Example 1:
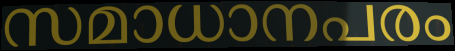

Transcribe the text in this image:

സമാധാനപരം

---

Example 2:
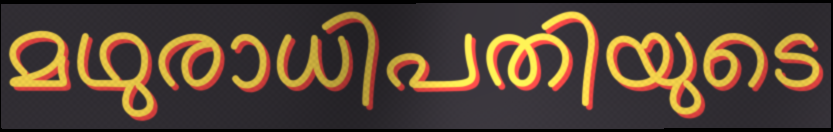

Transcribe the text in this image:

മഥുരാധിപതിയുടെ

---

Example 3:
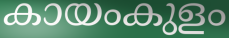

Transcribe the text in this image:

കായംകുളം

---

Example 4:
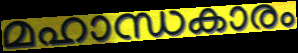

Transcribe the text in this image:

മഹാന്ധകാരം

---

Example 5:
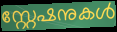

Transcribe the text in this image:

സ്റ്റേഷനുകൾ